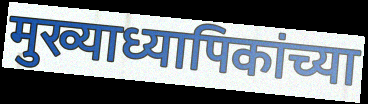
मुख्याध्यापिकांच्या